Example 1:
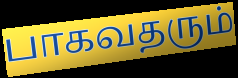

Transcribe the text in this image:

பாகவதரும்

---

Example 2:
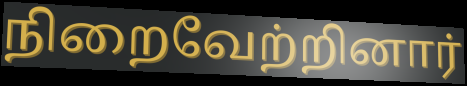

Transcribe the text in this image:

நிறைவேற்றினார்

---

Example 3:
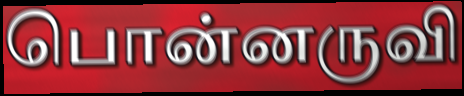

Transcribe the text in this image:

பொன்னருவி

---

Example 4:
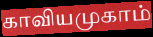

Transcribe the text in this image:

காவியமுகாம்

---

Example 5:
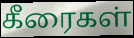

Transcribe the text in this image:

கீரைகள்